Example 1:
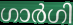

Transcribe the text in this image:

ഗാർഗി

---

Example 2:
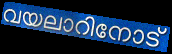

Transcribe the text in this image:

വയലാറിനോട്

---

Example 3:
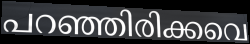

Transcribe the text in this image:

പറഞ്ഞിരിക്കവെ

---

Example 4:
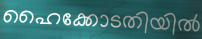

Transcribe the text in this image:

ഹൈക്കോടതിയിൽ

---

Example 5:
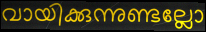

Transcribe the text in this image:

വായിക്കുന്നുണ്ടല്ലോ